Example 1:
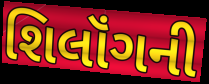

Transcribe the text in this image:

શિલૉંગની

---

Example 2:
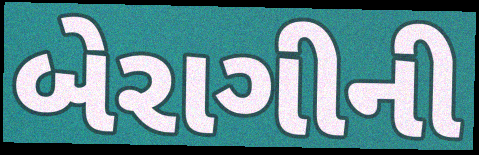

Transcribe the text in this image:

બેરાગીની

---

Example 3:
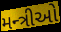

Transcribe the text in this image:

મન્ત્રીઓ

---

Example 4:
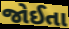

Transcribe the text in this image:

જોઈતા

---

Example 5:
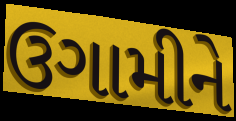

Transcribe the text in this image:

ઉગામીને